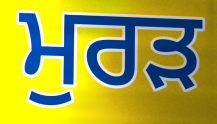
ਮੁਰੜ